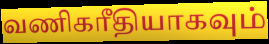
வணிகரீதியாகவும்